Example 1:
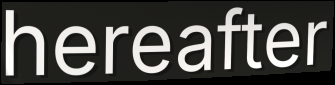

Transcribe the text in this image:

hereafter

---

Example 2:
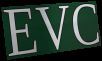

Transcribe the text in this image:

EVC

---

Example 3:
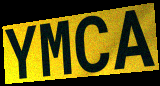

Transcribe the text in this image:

YMCA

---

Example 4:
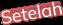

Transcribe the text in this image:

Setelah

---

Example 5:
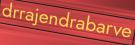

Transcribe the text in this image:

drrajendrabarve